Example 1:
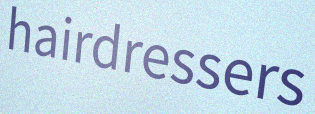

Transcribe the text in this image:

hairdressers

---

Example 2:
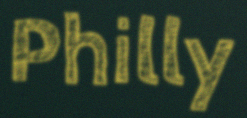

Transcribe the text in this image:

Philly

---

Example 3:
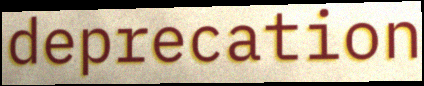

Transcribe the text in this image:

deprecation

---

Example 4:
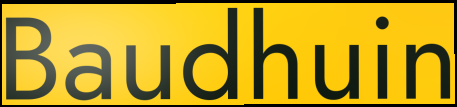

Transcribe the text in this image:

Baudhuin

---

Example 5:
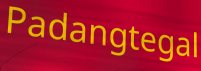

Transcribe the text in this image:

Padangtegal